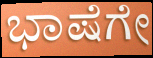
ಭಾಷೆಗೇ